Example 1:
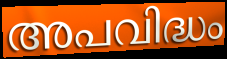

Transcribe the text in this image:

അപവിദ്ധം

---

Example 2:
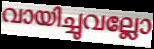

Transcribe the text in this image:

വായിച്ചുവല്ലോ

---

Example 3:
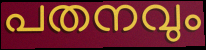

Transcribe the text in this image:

പതനവും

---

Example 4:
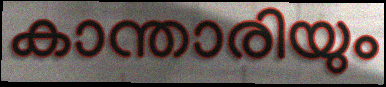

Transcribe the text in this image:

കാന്താരിയും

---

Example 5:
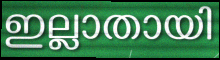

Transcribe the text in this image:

ഇല്ലാതായി